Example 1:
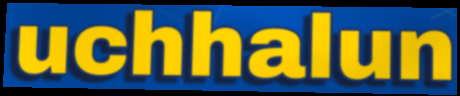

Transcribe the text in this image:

uchhalun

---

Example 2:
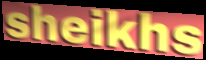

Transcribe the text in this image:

sheikhs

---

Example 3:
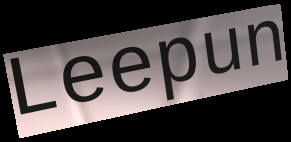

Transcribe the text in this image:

Leepun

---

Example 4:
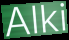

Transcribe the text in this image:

Alki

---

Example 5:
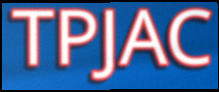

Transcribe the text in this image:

TPJAC